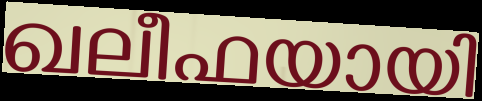
ഖലീഫയായി